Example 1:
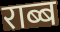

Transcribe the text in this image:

राब्ब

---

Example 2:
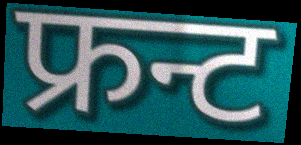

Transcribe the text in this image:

फ्रन्ट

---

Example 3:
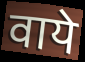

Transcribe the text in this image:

वाये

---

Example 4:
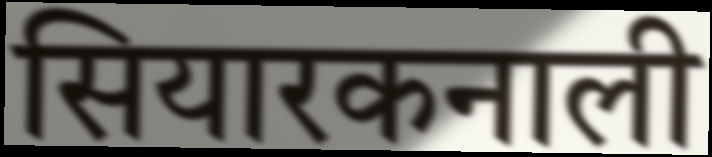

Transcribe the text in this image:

सियारकनाली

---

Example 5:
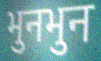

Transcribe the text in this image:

भुनभुन